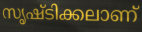
സൃഷ്ടിക്കലാണ്